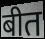
बीत